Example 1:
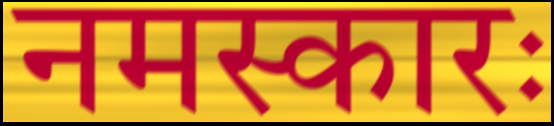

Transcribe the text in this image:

नमस्कारः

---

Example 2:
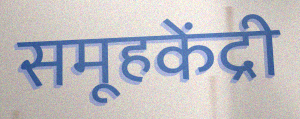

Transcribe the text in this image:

समूहकेंद्री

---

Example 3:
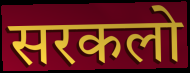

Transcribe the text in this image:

सरकलो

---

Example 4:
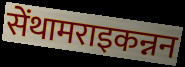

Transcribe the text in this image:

सेंथामराइकन्नन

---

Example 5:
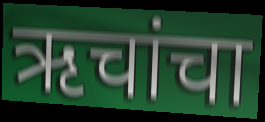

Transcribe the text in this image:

ऋचांचा